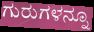
ಗುರುಗಳನ್ನೂ